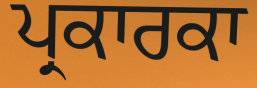
ਪ੍ਰਕਾਰਕਾ